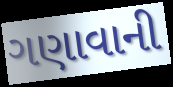
ગણાવાની